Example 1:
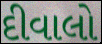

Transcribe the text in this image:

દીવાલો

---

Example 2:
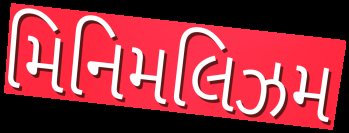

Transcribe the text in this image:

મિનિમલિઝમ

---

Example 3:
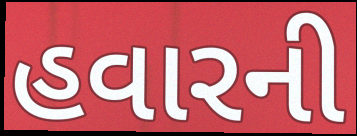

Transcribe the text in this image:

હવારની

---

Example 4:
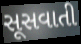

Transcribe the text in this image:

સૂસવાતી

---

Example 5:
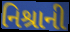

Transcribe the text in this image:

નિશ્રાની